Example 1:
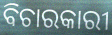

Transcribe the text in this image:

ବିଚାରକାରୀ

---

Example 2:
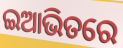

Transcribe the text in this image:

ଇଆଭିତରେ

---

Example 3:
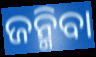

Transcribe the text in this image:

ଜନ୍ମିବା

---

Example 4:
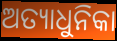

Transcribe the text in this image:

ଅତ୍ୟାଧୁନିକା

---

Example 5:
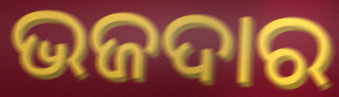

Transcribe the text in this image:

ଭଜଦାର